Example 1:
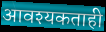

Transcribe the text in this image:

आवश्यकताही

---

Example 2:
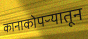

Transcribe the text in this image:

कानाकोपऱ्यातून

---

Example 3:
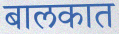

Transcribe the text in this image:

बालकात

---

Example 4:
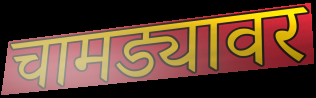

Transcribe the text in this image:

चामड्यावर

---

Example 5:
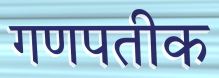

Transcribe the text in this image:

गणपतीक